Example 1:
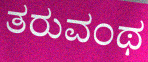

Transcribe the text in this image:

ತರುವಂಥ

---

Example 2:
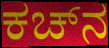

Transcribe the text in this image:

ಕಚ್‌ನ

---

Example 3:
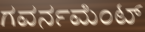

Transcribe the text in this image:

ಗವರ್ನಮೆಂಟ್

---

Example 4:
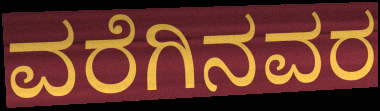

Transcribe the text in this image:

ವರೆಗಿನವರ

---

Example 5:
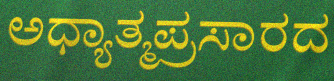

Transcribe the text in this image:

ಅಧ್ಯಾತ್ಮಪ್ರಸಾರದ